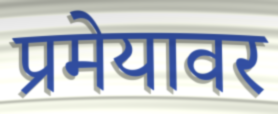
प्रमेयावर